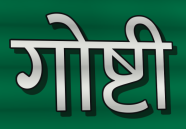
गोष्टी